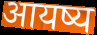
आयष्य